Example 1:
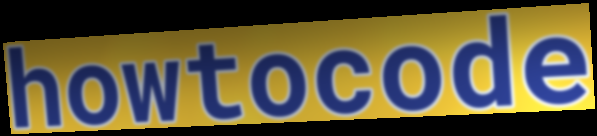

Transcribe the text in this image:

howtocode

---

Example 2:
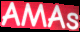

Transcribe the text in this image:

AMAs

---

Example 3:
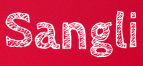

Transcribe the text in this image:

Sangli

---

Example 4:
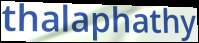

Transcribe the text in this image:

thalaphathy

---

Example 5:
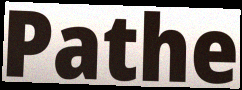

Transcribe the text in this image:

Pathe